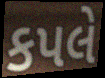
કપલે